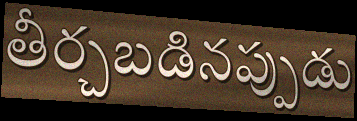
తీర్చబడినప్పుడు